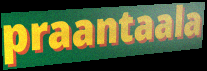
praantaala